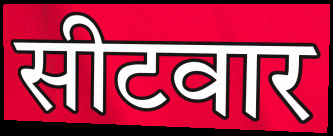
सीटवार